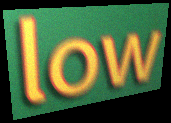
low